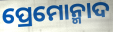
ପ୍ରେମୋନ୍ମାଦ